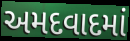
અમદવાદમાં